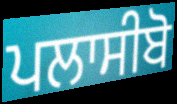
ਪਲਾਸੀਬੋ